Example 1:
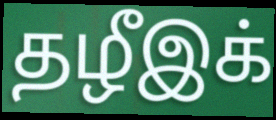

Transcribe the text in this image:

தழீஇக்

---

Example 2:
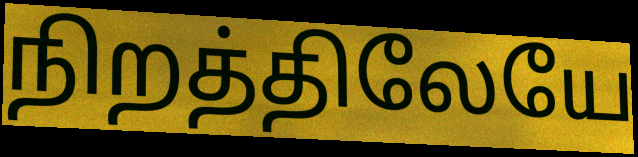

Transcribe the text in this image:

நிறத்திலேயே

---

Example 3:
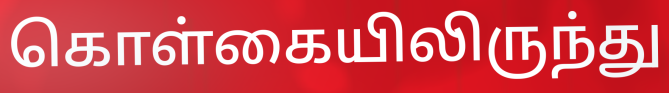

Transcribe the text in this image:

கொள்கையிலிருந்து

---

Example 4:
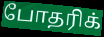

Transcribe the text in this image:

போதரிக்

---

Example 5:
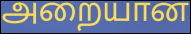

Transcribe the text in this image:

அறையான